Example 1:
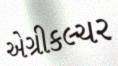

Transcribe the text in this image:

એગ્રીકલ્ચર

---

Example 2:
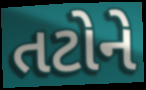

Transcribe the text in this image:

તટોને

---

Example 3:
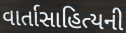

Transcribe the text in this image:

વાર્તાસાહિત્યની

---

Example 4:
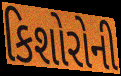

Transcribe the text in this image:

કિશોરોની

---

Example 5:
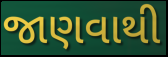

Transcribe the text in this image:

જાણવાથી